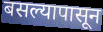
बसल्यापासून